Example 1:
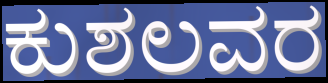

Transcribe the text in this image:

ಕುಶಲವರ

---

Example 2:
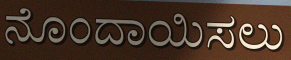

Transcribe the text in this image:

ನೊಂದಾಯಿಸಲು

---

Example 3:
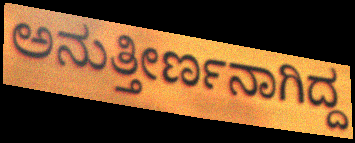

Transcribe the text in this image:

ಅನುತ್ತೀರ್ಣನಾಗಿದ್ದ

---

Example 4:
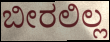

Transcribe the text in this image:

ಬೀರಲಿಲ್ಲ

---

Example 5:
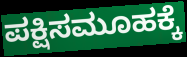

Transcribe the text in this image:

ಪಕ್ಷಿಸಮೂಹಕ್ಕೆ